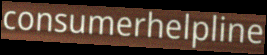
consumerhelpline